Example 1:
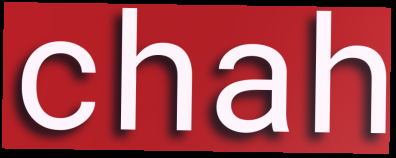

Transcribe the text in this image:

chah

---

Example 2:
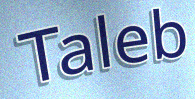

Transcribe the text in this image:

Taleb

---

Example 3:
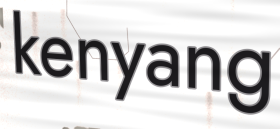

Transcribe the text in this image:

kenyang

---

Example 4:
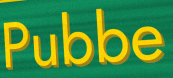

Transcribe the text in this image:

Pubbe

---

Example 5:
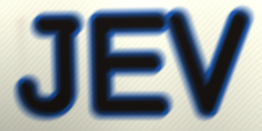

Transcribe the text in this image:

JEV